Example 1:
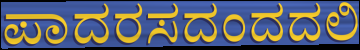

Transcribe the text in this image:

ಪಾದರಸದಂದದಲಿ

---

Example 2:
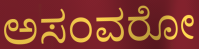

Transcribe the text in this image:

ಅಸಂವರೋ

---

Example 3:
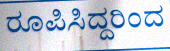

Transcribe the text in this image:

ರೂಪಿಸಿದ್ದರಿಂದ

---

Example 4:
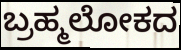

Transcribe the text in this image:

ಬ್ರಹ್ಮಲೋಕದ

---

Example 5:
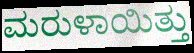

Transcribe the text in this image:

ಮರುಳಾಯಿತ್ತು